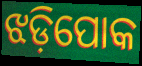
ଝଡ଼ିପୋକ